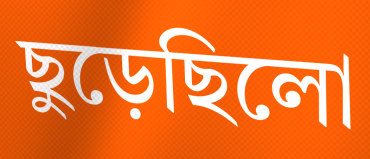
ছুড়েছিলো